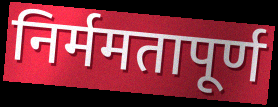
निर्ममतापूर्ण